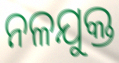
ନଳଯୁକ୍ତ